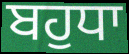
ਬਹੁਧਾ